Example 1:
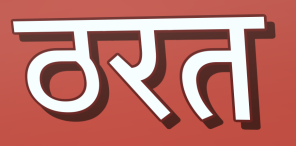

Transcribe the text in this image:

ठरत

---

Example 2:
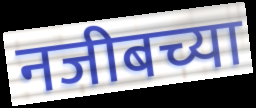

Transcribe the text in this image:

नजीबच्या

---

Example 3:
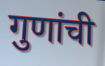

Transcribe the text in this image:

गुणांची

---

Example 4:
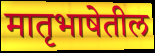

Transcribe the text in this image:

मातृभाषेतील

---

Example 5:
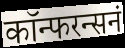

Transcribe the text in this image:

कॉन्फरन्सनं